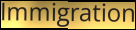
Immigration